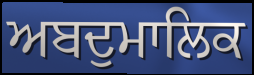
ਅਬਦੁਮਾਲਿਕ